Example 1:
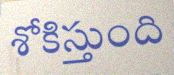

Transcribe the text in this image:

శోకిస్తుంది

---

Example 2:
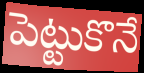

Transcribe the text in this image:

పెట్టుకొనే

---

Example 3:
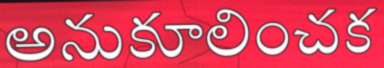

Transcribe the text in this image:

అనుకూలించక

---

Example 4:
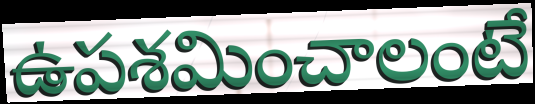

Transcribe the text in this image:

ఉపశమించాలంటే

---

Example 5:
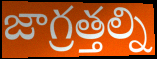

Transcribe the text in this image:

జాగ్రత్తల్ని